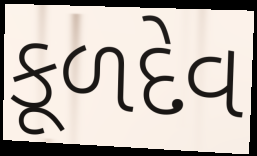
કૂળદેવ